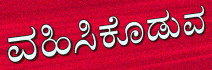
ವಹಿಸಿಕೊಡುವ